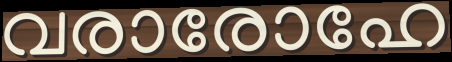
വരാരോഹേ